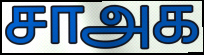
சாஅக